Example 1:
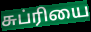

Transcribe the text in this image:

சுப்ரியை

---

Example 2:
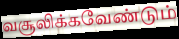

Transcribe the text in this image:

வசூலிக்கவேண்டும்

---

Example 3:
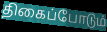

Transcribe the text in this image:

திகைப்போடும்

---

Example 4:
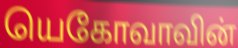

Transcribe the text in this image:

யெகோவாவின்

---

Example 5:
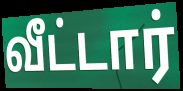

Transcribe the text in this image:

வீட்டார்